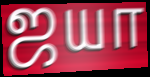
ஜயா